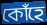
কোঁহে